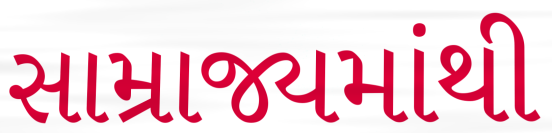
સામ્રાજ્યમાંથી